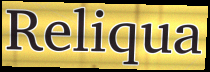
Reliqua